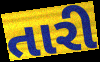
તારી